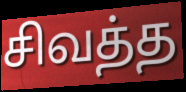
சிவத்த